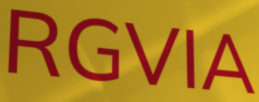
RGVIA